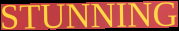
STUNNING